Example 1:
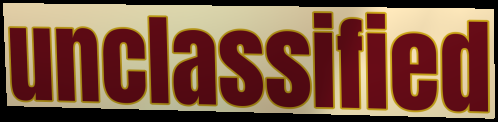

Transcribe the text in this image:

unclassified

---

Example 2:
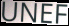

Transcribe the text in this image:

UNEF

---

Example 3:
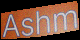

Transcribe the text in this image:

Ashm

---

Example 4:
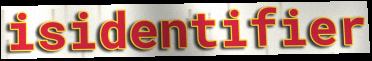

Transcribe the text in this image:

isidentifier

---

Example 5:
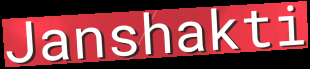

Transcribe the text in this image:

Janshakti